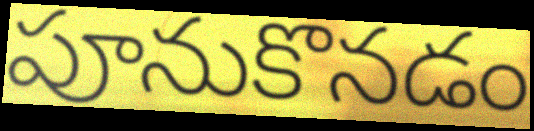
పూనుకొనడం